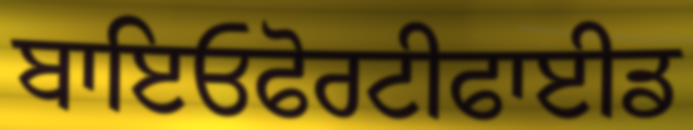
ਬਾਇਓਫੋਰਟੀਫਾਈਡ